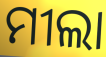
ମୀଲା